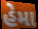
હેમા